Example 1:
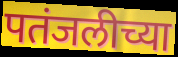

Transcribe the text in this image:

पतंजलीच्या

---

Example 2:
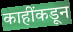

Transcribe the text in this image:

काहींकडून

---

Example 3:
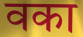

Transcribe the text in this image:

वका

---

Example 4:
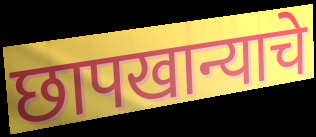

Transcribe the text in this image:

छापखान्याचे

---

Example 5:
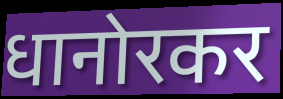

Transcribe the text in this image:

धानोरकर